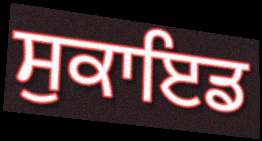
ਸੁਕਾਇਡ